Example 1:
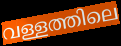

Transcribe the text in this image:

വള്ളത്തിലെ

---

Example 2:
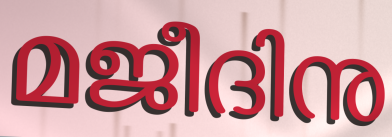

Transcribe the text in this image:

മജീദിനു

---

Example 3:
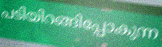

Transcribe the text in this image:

പടിയിറങ്ങിപ്പോകുന്ന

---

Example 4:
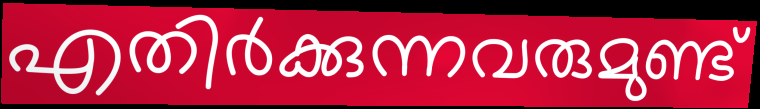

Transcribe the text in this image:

എതിർക്കുന്നവരുമുണ്ട്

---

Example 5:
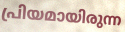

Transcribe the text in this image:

പ്രിയമായിരുന്ന